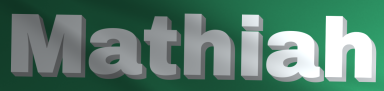
Mathiah